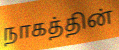
நாகத்தின்